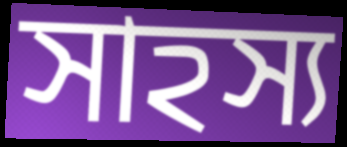
সাহস্য